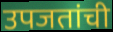
उपजतांची